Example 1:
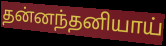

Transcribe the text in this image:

தன்னந்தனியாய்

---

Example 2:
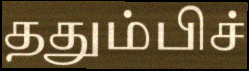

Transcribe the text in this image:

ததும்பிச்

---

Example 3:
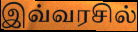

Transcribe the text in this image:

இவ்வரசில்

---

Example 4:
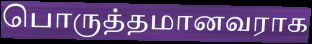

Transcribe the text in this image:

பொருத்தமானவராக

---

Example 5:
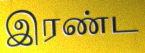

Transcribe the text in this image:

இரண்ட